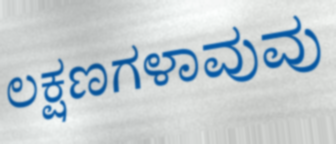
ಲಕ್ಷಣಗಳಾವುವು